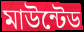
মাউন্টেড